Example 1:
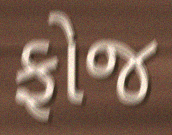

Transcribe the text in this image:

ફોજ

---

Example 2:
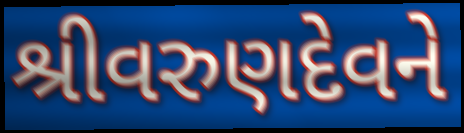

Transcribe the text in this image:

શ્રીવરુણદેવને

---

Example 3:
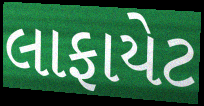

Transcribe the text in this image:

લાફાયેટ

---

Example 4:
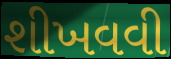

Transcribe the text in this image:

શીખવવી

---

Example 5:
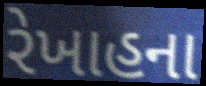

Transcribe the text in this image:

રેખાહના